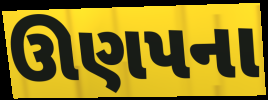
ઊણપના